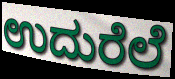
ಉದುರೆಲೆ